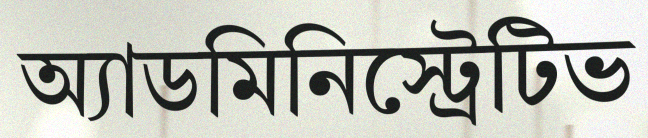
অ্যাডমিনিস্ট্রেটিভ